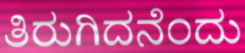
ತಿರುಗಿದನೆಂದು